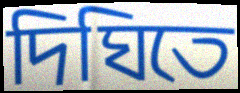
দিঘিতে